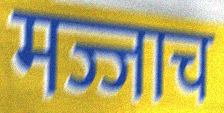
मज्जाच